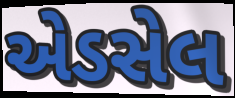
એડસેલ